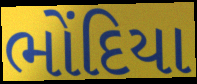
ભોંદિયા